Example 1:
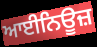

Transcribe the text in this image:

ਆਈਨਿਊਜ਼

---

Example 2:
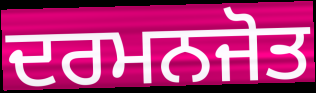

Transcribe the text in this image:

ਦਰਮਨਜੋਤ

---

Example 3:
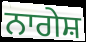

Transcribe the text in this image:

ਨਾਗੇਸ਼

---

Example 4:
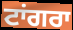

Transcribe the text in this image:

ਟਾਂਗਰਾ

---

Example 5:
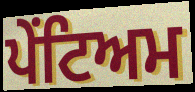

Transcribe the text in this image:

ਪੇਂਟਿਅਮ